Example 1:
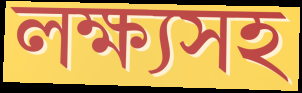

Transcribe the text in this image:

লক্ষ্যসহ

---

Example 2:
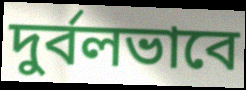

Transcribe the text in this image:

দুর্বলভাবে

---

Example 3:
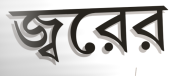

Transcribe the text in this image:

জ্বরের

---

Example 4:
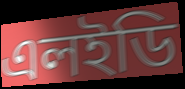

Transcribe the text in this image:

এলইডি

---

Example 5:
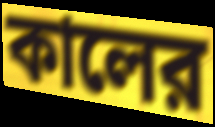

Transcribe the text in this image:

কালের